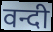
वन्दी